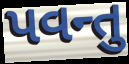
પવન્તુ